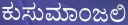
ಕುಸುಮಾಂಜಲಿ